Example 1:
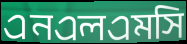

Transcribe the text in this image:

এনএলএমসি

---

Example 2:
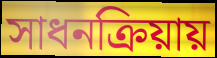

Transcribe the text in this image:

সাধনক্রিয়ায়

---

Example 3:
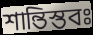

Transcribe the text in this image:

শান্তিস্তবঃ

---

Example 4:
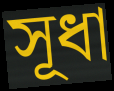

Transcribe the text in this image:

সূধা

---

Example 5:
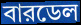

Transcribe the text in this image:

বারডেল